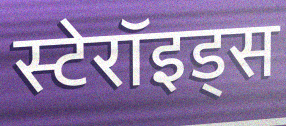
स्टेरॉइड्स